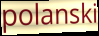
polanski